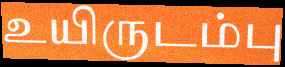
உயிருடம்பு